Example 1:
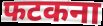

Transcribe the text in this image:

फटकना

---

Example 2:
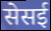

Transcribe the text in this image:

सेसई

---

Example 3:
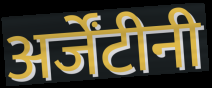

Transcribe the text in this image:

अर्जेंटीनी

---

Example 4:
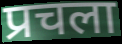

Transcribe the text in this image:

प्रचला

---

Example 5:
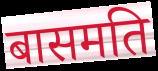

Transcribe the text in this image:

बासमति